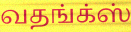
வதங்க்ஸ்